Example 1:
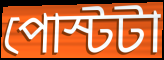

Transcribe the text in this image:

পোস্টটা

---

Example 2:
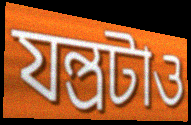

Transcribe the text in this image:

যন্ত্রটাও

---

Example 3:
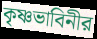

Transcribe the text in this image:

কৃষ্ণভাবিনীর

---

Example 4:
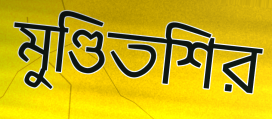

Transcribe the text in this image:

মুণ্ডিতশির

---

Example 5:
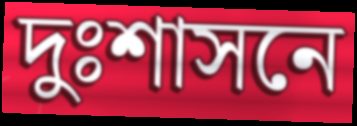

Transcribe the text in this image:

দুঃশাসনে